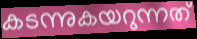
കടന്നുകയറുന്നത്